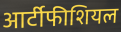
आर्टीफीशियल